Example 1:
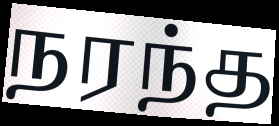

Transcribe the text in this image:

நரந்த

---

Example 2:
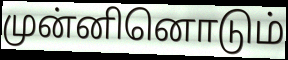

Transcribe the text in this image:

முன்னினொடும்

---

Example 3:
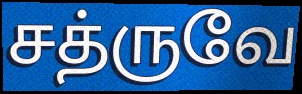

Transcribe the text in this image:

சத்ருவே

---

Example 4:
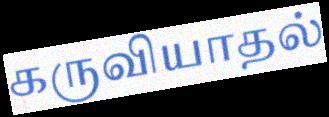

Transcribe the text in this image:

கருவியாதல்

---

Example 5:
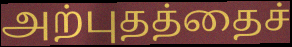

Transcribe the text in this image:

அற்புதத்தைச்